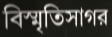
বিস্মৃতিসাগর